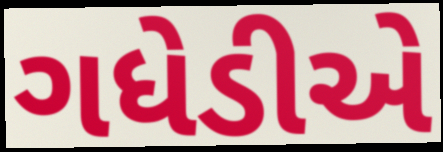
ગધેડીએ